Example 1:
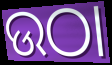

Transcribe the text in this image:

ଉଠା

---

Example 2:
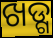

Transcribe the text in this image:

ଖଡ୍ଗ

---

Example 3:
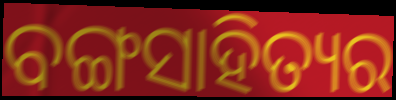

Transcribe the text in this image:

ବଙ୍ଗସାହିତ୍ୟର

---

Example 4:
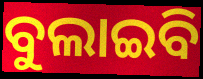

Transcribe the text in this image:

ବୁଲାଇବି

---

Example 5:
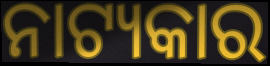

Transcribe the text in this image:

ନାଟ୍ଯକାର